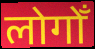
लोगोँ